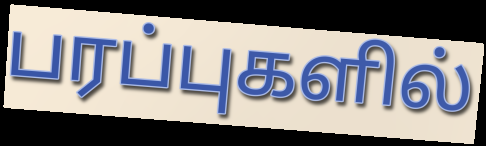
பரப்புகளில்